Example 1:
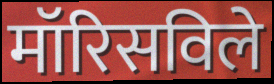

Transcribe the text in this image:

मॉरिसविले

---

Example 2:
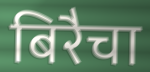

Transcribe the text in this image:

बिरैचा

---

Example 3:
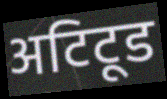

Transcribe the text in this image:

अटिटूड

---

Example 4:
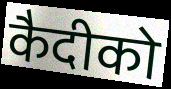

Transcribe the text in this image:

कैदीको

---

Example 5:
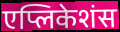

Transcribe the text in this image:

एप्लिकेशंस